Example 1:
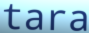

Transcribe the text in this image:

tara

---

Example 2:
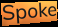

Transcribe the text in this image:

Spoke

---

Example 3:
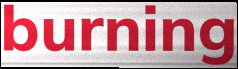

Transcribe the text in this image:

burning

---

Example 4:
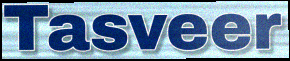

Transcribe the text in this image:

Tasveer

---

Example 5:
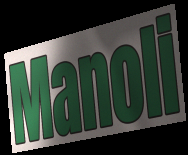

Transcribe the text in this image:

Manoli